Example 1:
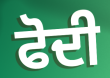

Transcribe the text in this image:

ਫੋਦੀ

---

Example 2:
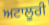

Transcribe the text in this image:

ਅਟਾਲੂਰੀ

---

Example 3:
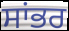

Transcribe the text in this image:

ਸਾਂਭਰ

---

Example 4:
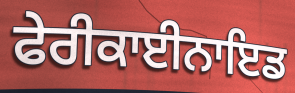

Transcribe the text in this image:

ਫੇਰੀਕਾਈਨਾਇਡ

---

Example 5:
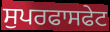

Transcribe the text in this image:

ਸੁਪਰਫਾਸਫੇਟ